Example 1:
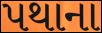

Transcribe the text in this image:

પથાના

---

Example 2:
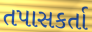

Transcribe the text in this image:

તપાસકર્તા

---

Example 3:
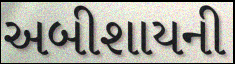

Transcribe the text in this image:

અબીશાયની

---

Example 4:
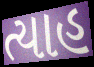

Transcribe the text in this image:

ત્યાહ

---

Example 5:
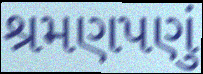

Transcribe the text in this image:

શ્રમણપણું